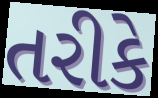
તરીકે